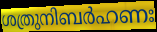
ശത്രുനിബർഹണഃ